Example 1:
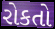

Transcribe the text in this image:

રોકતો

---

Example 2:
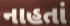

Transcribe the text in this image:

નાહતાં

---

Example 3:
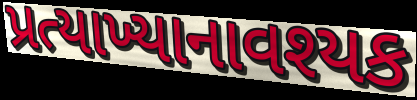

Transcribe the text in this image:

પ્રત્યાખ્યાનાવશ્યક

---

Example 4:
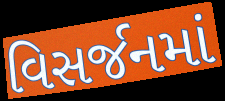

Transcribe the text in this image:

વિસર્જનમાં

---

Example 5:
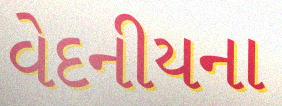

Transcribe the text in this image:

વેદનીયના